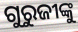
ଗୁରୁଜୀଙ୍କୁ